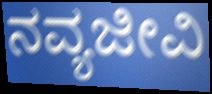
ನವ್ಯಜೀವಿ